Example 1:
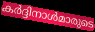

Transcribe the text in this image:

കർദ്ദിനാൾമാരുടെ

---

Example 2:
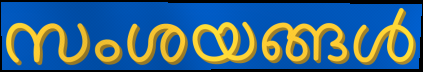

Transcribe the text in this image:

സംശയങ്ങൾ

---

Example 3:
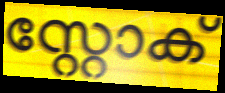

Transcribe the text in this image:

സ്റ്റോക്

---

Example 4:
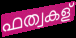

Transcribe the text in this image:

ഫത്വകള്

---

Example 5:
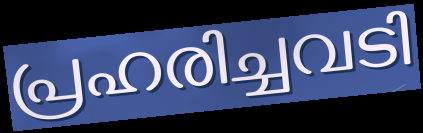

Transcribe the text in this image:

പ്രഹരിച്ചവടി